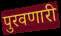
पुरवणारी